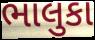
ભાલુકા